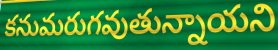
కనుమరుగవుతున్నాయని